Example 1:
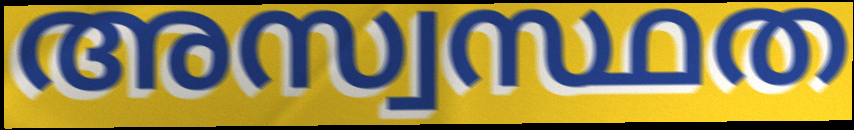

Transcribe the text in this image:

അസ്വസ്ഥത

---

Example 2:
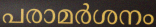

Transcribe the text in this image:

പരാമർശനം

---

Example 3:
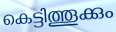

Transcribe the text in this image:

കെട്ടിത്തൂക്കും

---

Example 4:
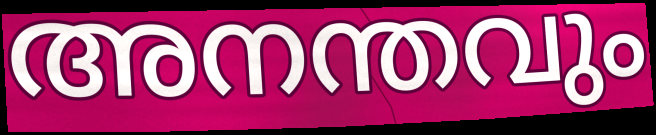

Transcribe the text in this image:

അനന്തവും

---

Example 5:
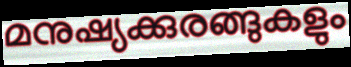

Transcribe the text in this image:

മനുഷ്യക്കുരങ്ങുകളും